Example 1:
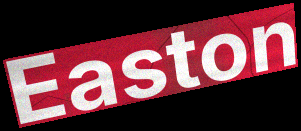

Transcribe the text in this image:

Easton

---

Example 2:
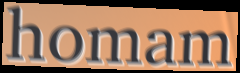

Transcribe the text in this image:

homam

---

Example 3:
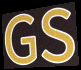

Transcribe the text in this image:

GS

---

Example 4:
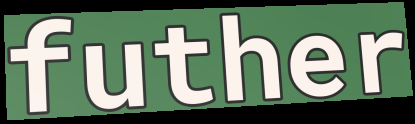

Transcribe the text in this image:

futher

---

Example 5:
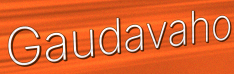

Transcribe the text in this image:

Gaudavaho